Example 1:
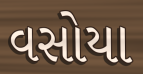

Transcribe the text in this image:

વસોયા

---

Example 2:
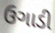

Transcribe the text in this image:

ઉગાડી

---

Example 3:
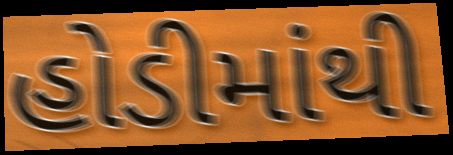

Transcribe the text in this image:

હોડીમાંથી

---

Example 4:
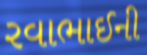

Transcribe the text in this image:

રવાભાઈની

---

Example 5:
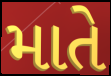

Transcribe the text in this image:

માતે